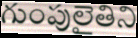
గుంపులైతిని